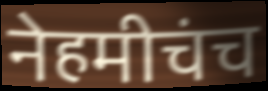
नेहमीचंच